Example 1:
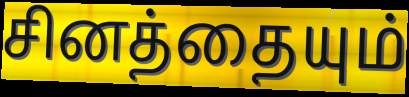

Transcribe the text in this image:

சினத்தையும்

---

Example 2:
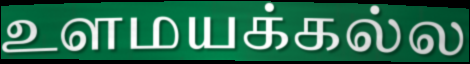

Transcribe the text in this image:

உளமயக்கல்ல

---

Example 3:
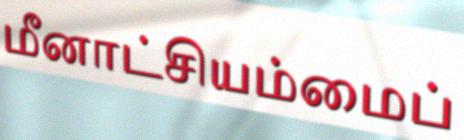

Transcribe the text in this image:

மீனாட்சியம்மைப்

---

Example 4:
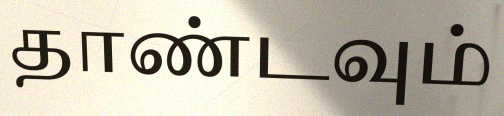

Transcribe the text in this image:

தாண்டவும்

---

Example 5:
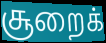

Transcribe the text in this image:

சூறைக்